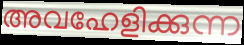
അവഹേളിക്കുന്ന